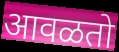
आवळतो